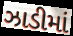
ઝાડીમાં